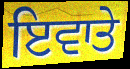
ਇਵਾਤੇ